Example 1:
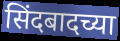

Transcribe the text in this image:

सिंदबादच्या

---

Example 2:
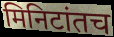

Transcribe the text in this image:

मिनिटांतच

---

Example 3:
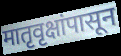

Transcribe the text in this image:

मातृवृक्षांपासून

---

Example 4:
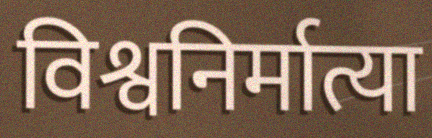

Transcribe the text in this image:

विश्वनिर्मात्या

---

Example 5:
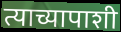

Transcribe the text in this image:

त्याच्यापाशी